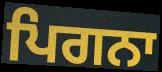
ਪਿਗਨਾ